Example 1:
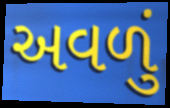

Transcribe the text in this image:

અવળું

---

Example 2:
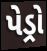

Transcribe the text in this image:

પેડ્રો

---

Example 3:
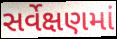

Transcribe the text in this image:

સર્વેક્ષણમાં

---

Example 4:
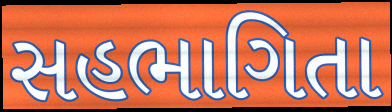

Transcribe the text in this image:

સહભાગિતા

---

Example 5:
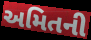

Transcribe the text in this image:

અમિતની